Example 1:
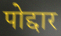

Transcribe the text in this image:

पोद्दार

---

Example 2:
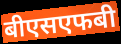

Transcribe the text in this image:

बीएसएफबी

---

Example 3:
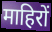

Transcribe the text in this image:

माहिरों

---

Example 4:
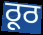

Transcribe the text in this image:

ठूठ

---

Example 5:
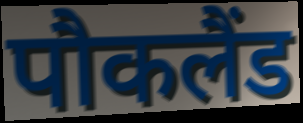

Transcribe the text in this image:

पौकलैंड